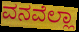
ವನವೆಲ್ಲಾ